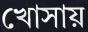
খোসায়